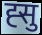
ह्सु